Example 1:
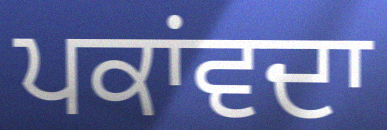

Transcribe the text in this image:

ਪਕਾਂਵਦਾ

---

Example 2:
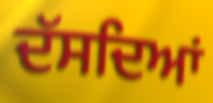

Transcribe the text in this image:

ਦੱਸਦਿਆਂ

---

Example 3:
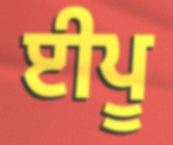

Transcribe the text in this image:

ਈਪੂ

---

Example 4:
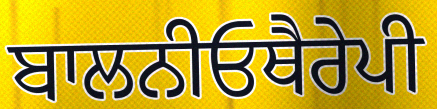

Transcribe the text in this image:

ਬਾਲਨੀਓਥੈਰੇਪੀ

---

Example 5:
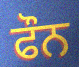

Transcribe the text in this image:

ਫੌਨ